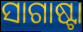
ସାଗାଷ୍ଟା